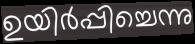
ഉയിർപ്പിച്ചെന്നു